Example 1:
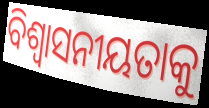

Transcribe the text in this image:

ବିଶ୍ୱାସନୀୟତାକୁ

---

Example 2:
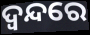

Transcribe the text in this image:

ଦ୍ୱନ୍ଦରେ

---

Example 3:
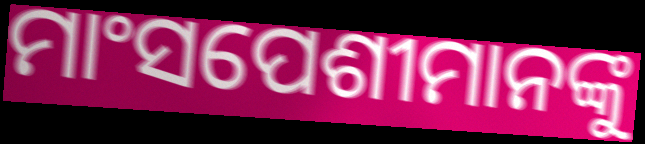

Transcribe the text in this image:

ମାଂସପେଶୀମାନଙ୍କୁ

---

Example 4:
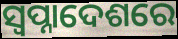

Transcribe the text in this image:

ସ୍ଵପ୍ନାଦେଶରେ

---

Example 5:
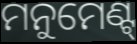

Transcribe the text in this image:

ମନୁମେଣ୍ଟ୍